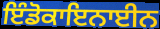
ਇੰਡੋਕਾਇਨਾਈਨ